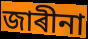
জাৰীনা